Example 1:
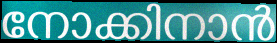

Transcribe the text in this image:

നോക്കിനാൻ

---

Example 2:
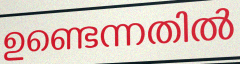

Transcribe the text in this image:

ഉണ്ടെന്നതിൽ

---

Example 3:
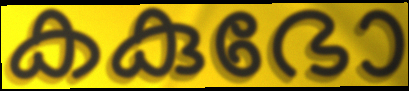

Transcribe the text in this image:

കകുഭോ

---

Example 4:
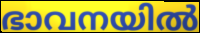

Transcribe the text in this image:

ഭാവനയിൽ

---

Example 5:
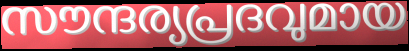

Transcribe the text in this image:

സൗന്ദര്യപ്രദവുമായ